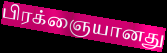
பிரக்ஞையானது